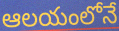
ఆలయంలోనే